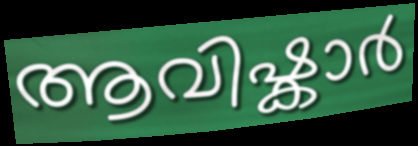
ആവിഷ്കാർ